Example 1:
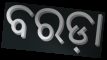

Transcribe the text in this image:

ବରଡ଼ା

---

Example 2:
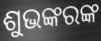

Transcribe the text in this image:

ଶୁଭଙ୍କରଙ୍କ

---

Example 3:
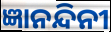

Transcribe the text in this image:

ଜ୍ଞାନନ୍ଦିନୀ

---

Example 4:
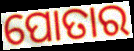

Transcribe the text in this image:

ପୋତାର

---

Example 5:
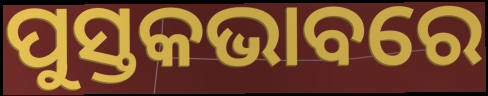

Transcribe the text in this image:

ପୁସ୍ତକଭାବରେ